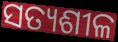
ସତ୍ୟଶୀଳ